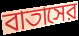
বাতাসের